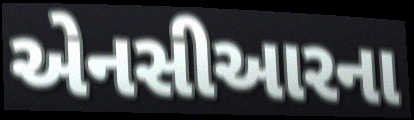
એનસીઆરના